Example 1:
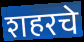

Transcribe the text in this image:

शहरचे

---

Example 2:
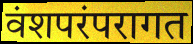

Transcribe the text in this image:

वंशपरंपरागत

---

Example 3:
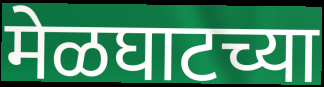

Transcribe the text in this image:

मेळघाटच्या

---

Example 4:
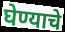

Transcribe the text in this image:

घेण्याचे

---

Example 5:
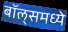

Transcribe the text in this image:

बॉल्समध्ये